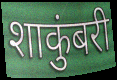
शाकुंबरी